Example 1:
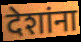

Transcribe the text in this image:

देशांना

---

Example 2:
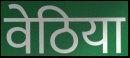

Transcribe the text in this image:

वेठिया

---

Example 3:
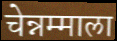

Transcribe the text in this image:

चेन्नम्माला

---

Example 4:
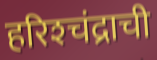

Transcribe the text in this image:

हरिश्‍चंद्राची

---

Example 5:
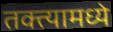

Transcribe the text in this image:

तक्त्यामध्ये